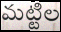
మట్టిల